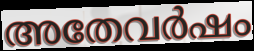
അതേവർഷം